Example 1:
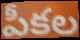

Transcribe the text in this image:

పీకల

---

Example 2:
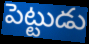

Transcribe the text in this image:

పెట్టుడు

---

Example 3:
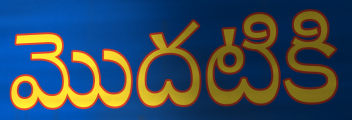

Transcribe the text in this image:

మొదటికి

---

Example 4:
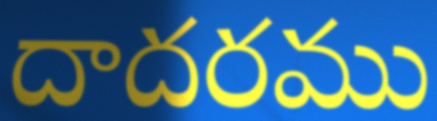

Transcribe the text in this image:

దాదరము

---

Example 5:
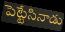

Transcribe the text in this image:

పెట్టేసినాడు